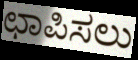
ಛಾಪಿಸಲು